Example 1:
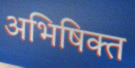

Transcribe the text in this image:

अभिषिक्त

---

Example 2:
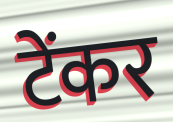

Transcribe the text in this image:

टेंकर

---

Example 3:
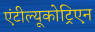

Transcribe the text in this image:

एंटील्यूकोट्रिएन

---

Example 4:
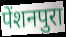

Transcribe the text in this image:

पेंशनपुरा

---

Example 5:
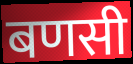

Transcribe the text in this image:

बणसी